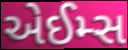
એઈમ્સ